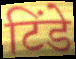
टिंडे